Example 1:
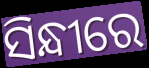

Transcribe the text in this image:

ସିନ୍ଧୀରେ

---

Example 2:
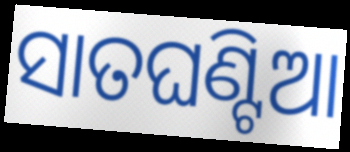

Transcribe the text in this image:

ସାତଘଣ୍ଟିଆ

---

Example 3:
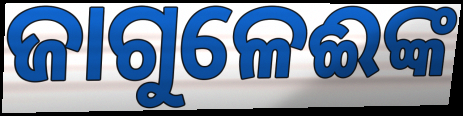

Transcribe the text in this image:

ଜାଗୁଳେଈଙ୍କ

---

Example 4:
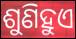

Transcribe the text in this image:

ଶୁଣିହୁଏ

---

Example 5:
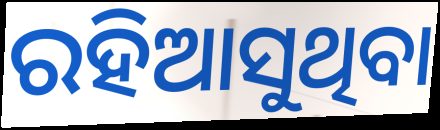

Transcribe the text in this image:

ରହିଆସୁଥିବା